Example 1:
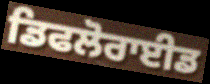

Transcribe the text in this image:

ਡਿਫਲੋਰਾਈਡ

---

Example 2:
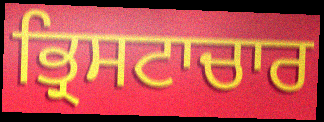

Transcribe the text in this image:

ਭ੍ਰਿਸਟਾਚਾਰ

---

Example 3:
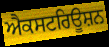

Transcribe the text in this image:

ਐਕਸਟਰਿਊਸ਼ਨ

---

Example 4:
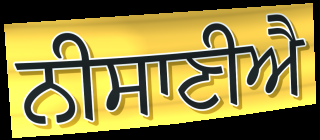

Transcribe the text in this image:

ਨੀਸਾਣੀਐ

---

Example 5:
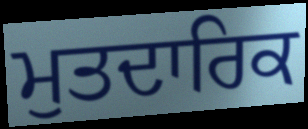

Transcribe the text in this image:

ਮੁਤਦਾਰਿਕ